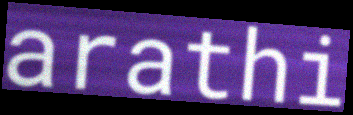
arathi